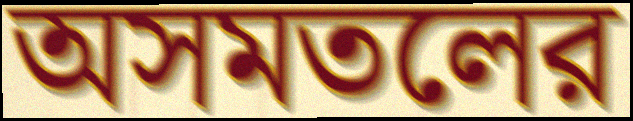
অসমতলের